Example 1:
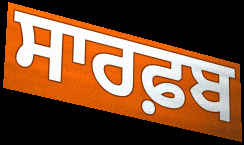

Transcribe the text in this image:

ਸਾਰਫ਼ਬ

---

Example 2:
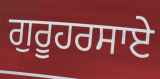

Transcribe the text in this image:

ਗੁਰੂਹਰਸਾਏ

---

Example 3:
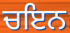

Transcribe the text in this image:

ਚਇਨ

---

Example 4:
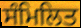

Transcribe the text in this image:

ਸੰਮਿਲਿਤ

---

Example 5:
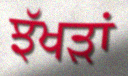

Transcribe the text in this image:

ਝੱਖੜਾਂ